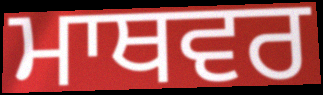
ਮਾਥਵਰ